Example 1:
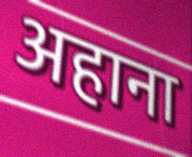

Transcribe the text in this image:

अहाना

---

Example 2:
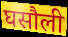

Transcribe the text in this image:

घसौली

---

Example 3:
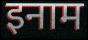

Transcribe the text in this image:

इनाम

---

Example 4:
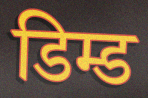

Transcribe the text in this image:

डिम्ड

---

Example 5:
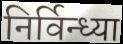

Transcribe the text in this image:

निर्विन्ध्या